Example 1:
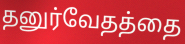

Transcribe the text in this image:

தனுர்வேதத்தை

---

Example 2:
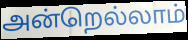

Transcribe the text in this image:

அன்றெல்லாம்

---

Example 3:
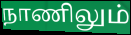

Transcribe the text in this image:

நாணிலும்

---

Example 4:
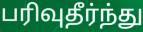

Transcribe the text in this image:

பரிவுதீர்ந்து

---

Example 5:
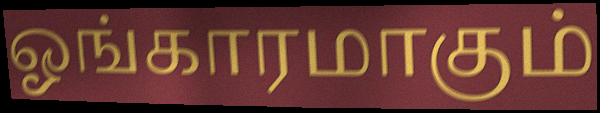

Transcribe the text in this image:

ஓங்காரமாகும்